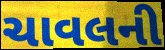
ચાવલની